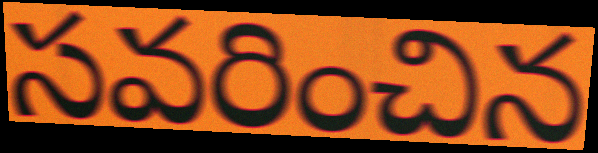
సవరించిన